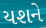
યશને